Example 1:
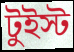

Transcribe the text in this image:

টুইস্ট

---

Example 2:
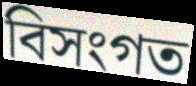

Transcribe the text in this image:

বিসংগত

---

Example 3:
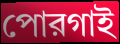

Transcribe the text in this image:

পোরগাই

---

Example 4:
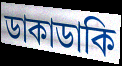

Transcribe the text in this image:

ডাকাডাকি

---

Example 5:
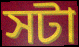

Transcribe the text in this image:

সটা